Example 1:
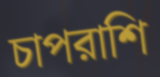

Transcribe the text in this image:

চাপরাশি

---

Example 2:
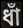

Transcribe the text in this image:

ধাঁ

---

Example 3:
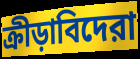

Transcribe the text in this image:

ক্রীড়াবিদেরা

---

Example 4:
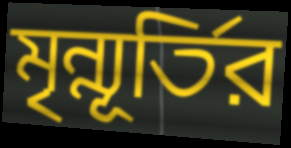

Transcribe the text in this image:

মৃন্মূর্তির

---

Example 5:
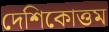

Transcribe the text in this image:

দেশিকোত্তম